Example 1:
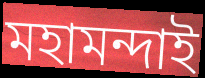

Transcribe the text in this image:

মহামন্দাই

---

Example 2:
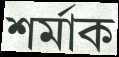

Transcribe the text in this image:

শৰ্মাক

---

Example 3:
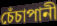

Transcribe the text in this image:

চেঁচাপানী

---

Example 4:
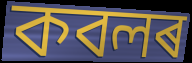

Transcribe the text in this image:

কবলৰ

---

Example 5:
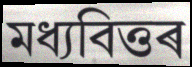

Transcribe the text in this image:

মধ্যবিত্তৰ